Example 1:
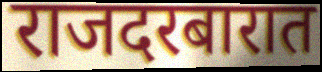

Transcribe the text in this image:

राजदरबारात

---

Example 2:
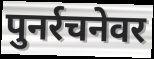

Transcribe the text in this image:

पुनर्रचनेवर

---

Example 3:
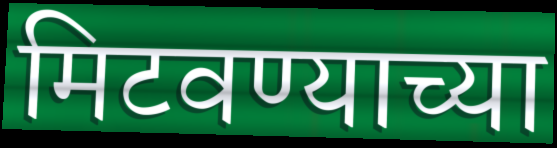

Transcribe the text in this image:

मिटवण्याच्या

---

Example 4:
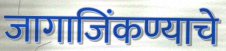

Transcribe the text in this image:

जागाजिंकण्याचे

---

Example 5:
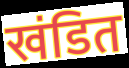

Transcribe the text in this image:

खंडित